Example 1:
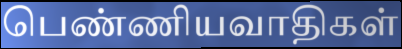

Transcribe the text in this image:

பெண்ணியவாதிகள்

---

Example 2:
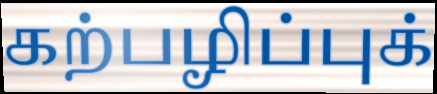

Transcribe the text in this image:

கற்பழிப்புக்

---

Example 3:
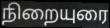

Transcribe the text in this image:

நிறையுரை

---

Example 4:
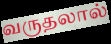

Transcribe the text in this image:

வருதலால்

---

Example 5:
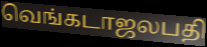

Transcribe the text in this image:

வெங்கடாஜலபதி